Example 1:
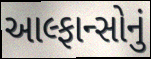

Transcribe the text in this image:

આલ્ફાન્સોનું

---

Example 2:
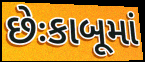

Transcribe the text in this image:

છેઃકાબૂમાં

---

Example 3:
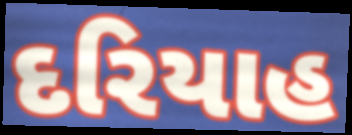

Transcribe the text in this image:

દરિયાહ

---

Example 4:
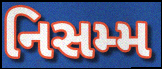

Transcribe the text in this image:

નિસમ્મ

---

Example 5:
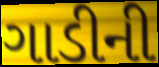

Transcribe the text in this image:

ગાડીની